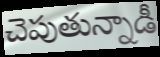
చెపుతున్నాడీ